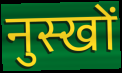
नुस्खों